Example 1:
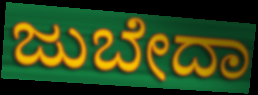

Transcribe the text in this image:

ಜುಬೇದಾ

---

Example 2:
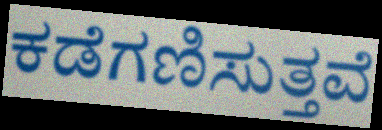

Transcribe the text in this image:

ಕಡೆಗಣಿಸುತ್ತವೆ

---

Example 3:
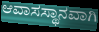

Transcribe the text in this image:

ಆವಾಸಸ್ಥಾನವಾಗಿ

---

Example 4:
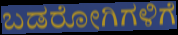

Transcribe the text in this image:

ಬಡರೋಗಿಗಳಿಗೆ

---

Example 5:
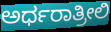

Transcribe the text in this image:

ಅರ್ಧರಾತ್ರೀಲಿ